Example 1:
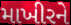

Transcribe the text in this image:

માખીરને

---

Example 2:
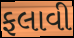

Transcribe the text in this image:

ફલાવી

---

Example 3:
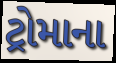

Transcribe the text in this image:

ટ્રોમાના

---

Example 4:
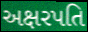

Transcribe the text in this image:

અક્ષરપતિ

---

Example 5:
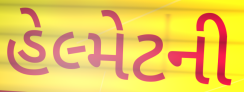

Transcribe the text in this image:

હેલ્મેટની